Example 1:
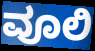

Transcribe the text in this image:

ವೂಲಿ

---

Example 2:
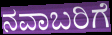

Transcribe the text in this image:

ನವಾಬರಿಗೆ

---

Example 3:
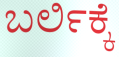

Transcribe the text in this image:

ಬರ್ಲಿಕ್ಕೆ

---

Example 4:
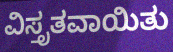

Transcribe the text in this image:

ವಿಸ್ತೃತವಾಯಿತು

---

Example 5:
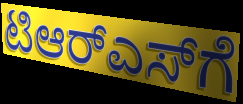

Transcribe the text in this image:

ಟಿಆರ್‌ಎಸ್‌ಗೆ